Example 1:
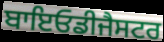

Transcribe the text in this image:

ਬਾਇਓਡੀਜੈਸਟਰ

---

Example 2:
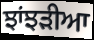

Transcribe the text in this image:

ਝਾਂਝੜੀਆ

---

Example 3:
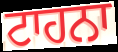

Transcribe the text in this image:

ਟਾਹਨਾ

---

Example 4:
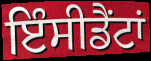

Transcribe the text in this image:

ਇੰਸੀਡੈਂਟਾਂ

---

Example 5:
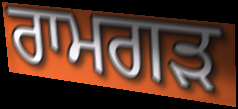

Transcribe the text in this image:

ਰਾਮਗੜ